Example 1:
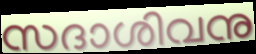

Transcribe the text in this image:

സദാശിവനു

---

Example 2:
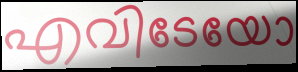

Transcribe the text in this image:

എവിടേയോ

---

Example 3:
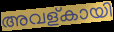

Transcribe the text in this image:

അവള്കായി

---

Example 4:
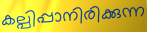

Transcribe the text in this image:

കല്പിപ്പാനിരിക്കുന്ന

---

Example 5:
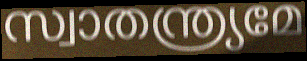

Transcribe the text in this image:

സ്വാതന്ത്ര്യമേ